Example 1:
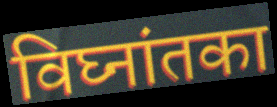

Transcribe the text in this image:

विघ्नांतका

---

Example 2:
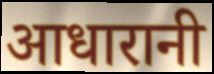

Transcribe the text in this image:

आधारानी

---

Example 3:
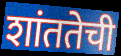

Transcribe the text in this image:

शांततेची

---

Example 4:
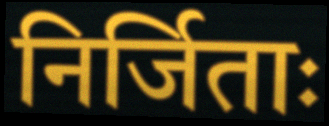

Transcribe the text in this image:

निर्जिताः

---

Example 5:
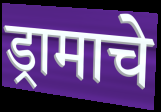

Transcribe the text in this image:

ड्रामाचे